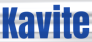
Kavite